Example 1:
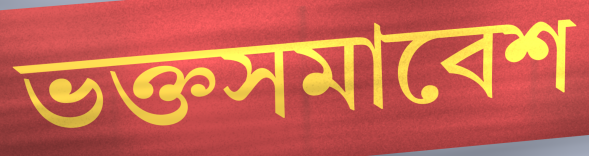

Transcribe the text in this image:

ভক্তসমাবেশ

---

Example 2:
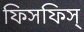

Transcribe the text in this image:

ফিসফিস্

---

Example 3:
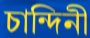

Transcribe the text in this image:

চান্দিনী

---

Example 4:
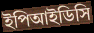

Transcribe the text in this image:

ইপিআইডিসি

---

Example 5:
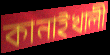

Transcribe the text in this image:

কানাইখালী